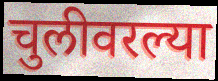
चुलीवरल्या